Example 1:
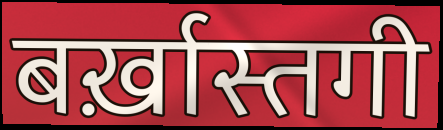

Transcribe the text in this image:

बर्ख़ास्तगी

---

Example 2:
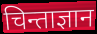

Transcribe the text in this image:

चिन्ताज्ञान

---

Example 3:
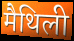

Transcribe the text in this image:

मैथिली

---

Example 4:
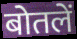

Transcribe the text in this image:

बोतलें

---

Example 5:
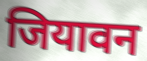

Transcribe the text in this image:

जियावन